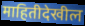
माहितीदेखील